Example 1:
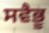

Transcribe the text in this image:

ਸਵੈਭੂ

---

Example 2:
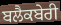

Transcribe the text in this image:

ਬਲੈਕਬੇਰੀ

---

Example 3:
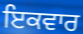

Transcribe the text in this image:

ਇਕਵਾਰ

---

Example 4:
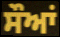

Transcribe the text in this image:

ਸੌਆਂ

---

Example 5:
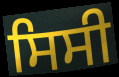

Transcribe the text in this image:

ਸਿਸੀ